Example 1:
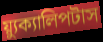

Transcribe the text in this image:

য়্যুক্যালিপটাস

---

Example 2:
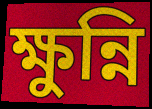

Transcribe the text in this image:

ক্ষুন্নি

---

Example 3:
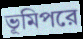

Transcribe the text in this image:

ভূমিপরে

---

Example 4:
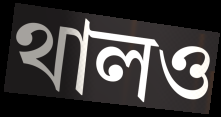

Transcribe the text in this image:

থালও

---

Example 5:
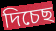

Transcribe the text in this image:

দিচেছ